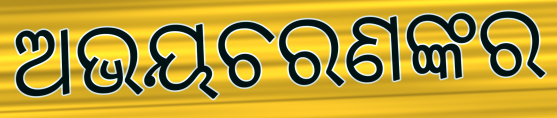
ଅଭୟଚରଣଙ୍କର